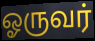
ஓருவர்